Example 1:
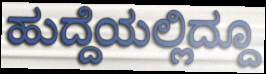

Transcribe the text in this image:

ಹುದ್ದೆಯಲ್ಲಿದ್ದೂ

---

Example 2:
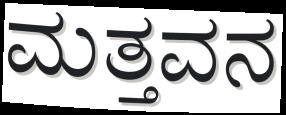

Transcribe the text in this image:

ಮತ್ತವನ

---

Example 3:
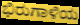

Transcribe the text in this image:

ಭಿರುಗಾಳಿಯ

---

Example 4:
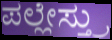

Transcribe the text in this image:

ಪಲ್ಲೇಸ್ತ್ರು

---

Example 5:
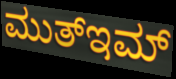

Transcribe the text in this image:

ಮುತ್ಇಮ್